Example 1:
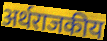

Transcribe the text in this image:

अर्थराजकीय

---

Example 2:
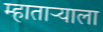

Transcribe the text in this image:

म्हाताऱ्याला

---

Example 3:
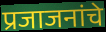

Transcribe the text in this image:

प्रजाजनांचे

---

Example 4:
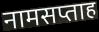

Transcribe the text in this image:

नामसप्ताह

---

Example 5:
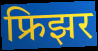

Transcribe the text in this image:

फ्रिझर